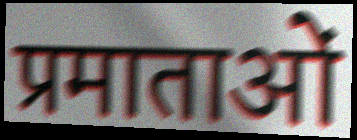
प्रमाताओं